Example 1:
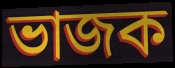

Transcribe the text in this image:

ভাজক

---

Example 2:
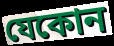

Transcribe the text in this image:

যেকোন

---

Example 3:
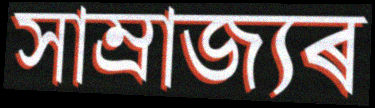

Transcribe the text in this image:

সাম্ৰাজ্যৰ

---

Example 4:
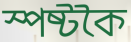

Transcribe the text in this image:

স্পষ্টকৈ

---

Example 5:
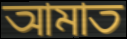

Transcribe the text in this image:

আমাত